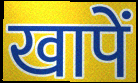
खापें